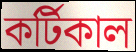
কর্টিকাল